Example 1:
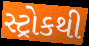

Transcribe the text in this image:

સ્ટ્રોકથી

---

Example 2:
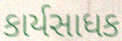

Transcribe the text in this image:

કાર્યસાધક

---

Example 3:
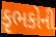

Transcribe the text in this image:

કૃભકોની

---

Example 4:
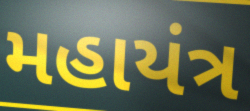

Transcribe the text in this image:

મહાયંત્ર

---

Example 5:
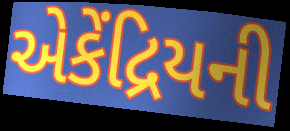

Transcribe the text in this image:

એકેંદ્રિયની